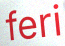
feri